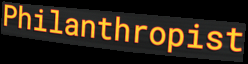
Philanthropist